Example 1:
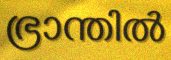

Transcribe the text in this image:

ഭ്രാന്തിൽ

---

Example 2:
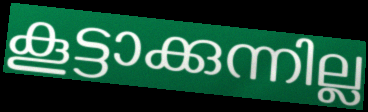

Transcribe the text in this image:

കൂട്ടാക്കുന്നില്ല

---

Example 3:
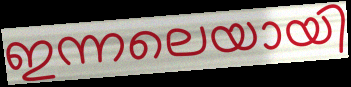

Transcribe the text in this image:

ഇന്നലെയായി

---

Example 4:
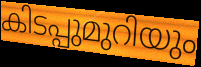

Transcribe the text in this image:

കിടപ്പുമുറിയും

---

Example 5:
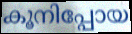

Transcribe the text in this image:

കൂനിപ്പോയ